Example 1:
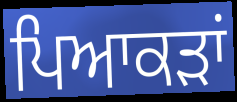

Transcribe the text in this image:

ਪਿਆਕੜਾਂ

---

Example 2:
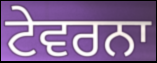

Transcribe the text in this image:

ਟੇਵਰਨਾ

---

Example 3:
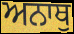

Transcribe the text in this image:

ਅਨਾਥੁ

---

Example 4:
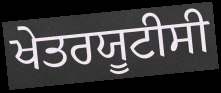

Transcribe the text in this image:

ਖੇਤਰਯੂਟੀਸੀ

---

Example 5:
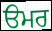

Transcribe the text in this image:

ੳਮਰ